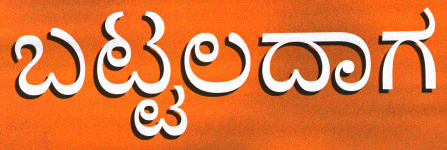
ಬಟ್ಟಲದಾಗ